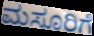
ಮಸೂರಿಗೆ